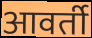
आवर्ती